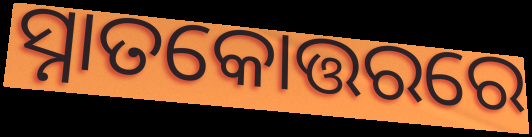
ସ୍ନାତକୋତ୍ତରରେ